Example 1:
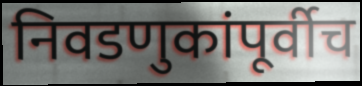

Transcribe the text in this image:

निवडणुकांपूर्वीच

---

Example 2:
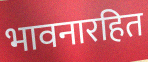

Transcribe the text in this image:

भावनारहित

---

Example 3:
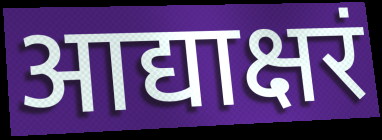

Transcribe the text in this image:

आद्याक्षरं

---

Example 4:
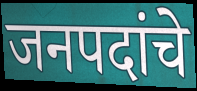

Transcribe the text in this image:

जनपदांचे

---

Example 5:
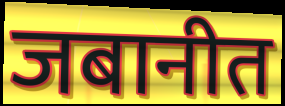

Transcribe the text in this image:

जबानीत